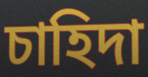
চাহিদা